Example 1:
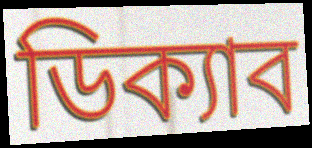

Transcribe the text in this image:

ডিক্যাব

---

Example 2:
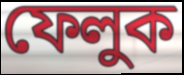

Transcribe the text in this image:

ফেলুক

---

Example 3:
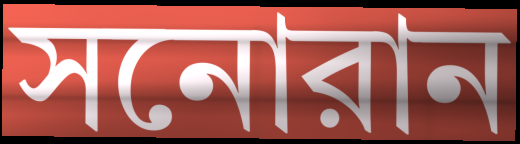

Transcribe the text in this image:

সনোরান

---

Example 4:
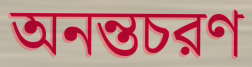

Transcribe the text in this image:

অনন্তচরণ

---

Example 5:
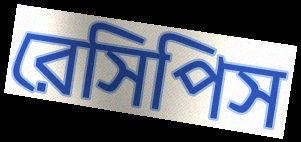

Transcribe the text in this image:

রেসিপিস